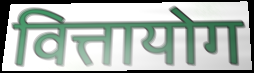
वित्तायोग